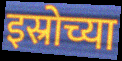
इस्रोच्या